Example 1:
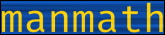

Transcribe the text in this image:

manmath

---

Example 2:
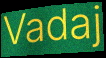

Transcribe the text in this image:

Vadaj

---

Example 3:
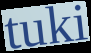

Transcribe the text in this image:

tuki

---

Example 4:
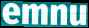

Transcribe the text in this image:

emnu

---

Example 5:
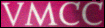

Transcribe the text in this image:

VMCC